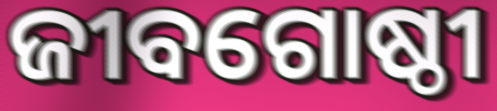
ଜୀବଗୋଷ୍ଠୀ